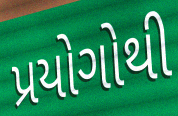
પ્રયોગોથી